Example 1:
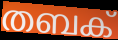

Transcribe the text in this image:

തബക്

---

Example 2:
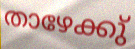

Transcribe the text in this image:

താഴേക്കു്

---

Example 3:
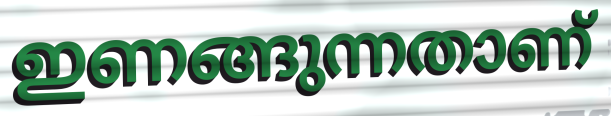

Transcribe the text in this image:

ഇണങ്ങുന്നതാണ്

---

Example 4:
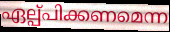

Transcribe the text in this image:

ഏല്പ്പിക്കണമെന്ന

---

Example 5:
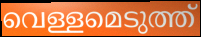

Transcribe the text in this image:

വെള്ളമെടുത്ത്